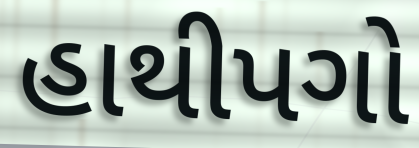
હાથીપગો